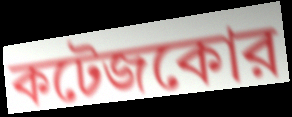
কটেজকোর